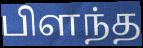
பிளந்த